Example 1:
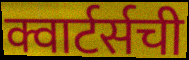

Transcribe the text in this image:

क्वार्टर्सची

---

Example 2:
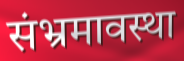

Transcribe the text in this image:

संभ्रमावस्था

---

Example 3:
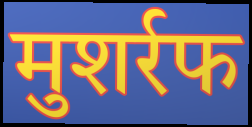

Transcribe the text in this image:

मुशर्रफ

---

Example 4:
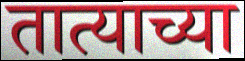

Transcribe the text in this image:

तात्याच्या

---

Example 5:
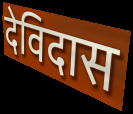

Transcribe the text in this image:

देविदास